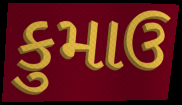
કુમાઉ